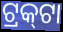
ଟ୍ରକ୍‌ଟା